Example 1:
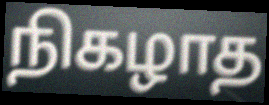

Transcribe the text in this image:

நிகழாத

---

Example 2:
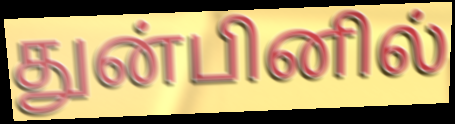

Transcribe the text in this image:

துன்பினில்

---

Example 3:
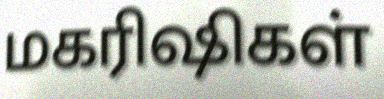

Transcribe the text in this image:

மகரிஷிகள்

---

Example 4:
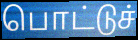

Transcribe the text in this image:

பொட்டுச்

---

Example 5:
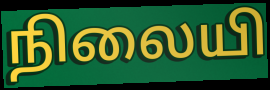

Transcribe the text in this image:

நிலையி